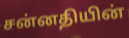
சன்னதியின்